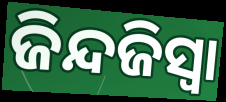
ଜିନ୍ଦଜିସ୍ୱା